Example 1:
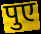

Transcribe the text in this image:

पुए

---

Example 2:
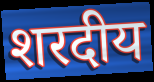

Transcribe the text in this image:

शरदीय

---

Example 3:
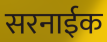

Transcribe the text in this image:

सरनाईक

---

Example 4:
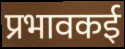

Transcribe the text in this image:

प्रभावकई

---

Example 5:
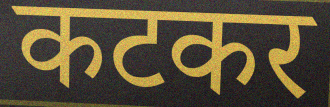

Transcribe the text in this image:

कटकर